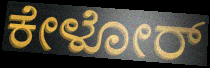
ಕೇಳೋರ್